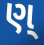
ણ્